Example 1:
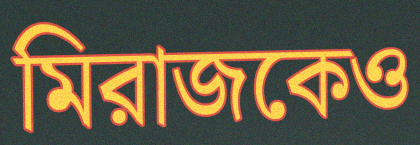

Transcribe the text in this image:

মিরাজকেও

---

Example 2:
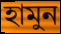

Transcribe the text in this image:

হামুন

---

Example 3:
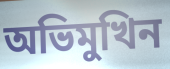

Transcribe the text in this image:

অভিমুখিন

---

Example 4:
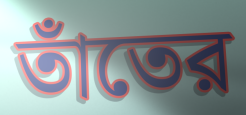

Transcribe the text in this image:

তাঁতের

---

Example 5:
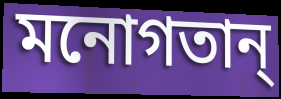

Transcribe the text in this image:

মনোগতান্